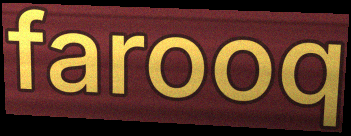
farooq